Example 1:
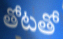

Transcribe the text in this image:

తోటతో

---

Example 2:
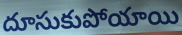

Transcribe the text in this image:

దూసుకుపోయాయి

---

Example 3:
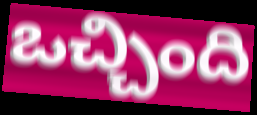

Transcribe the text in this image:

ఒచ్చింది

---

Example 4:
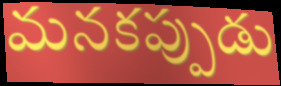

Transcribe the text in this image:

మనకప్పుడు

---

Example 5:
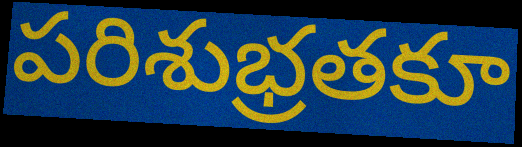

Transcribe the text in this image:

పరిశుభ్రతకూ